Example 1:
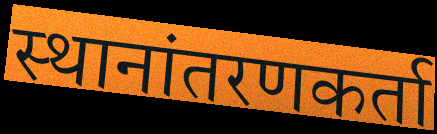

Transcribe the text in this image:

स्थानांतरणकर्ता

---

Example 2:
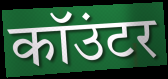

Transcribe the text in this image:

कॉउंटर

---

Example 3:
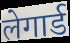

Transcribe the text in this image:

लेगार्ड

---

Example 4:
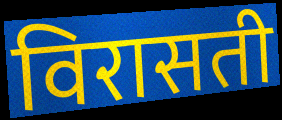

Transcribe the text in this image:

विरासती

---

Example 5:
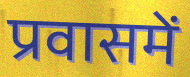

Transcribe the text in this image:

प्रवासमें